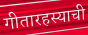
गीतारहस्याची